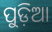
ପୁଡ଼ିଆ